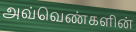
அவ்வெண்களின்